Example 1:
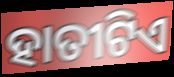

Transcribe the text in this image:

ହାତୀଟିଏ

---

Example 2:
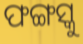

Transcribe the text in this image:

ଫଙ୍ଗସ୍କୁ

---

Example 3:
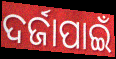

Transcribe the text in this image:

ଦର୍ଜାପାଇଁ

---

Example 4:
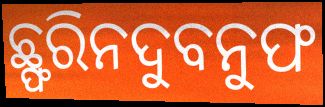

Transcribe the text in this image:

ଛ୍ଫରିନଦୁବନୁଫ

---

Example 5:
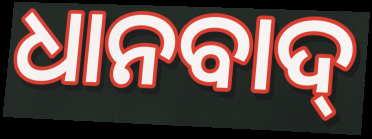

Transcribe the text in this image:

ଧାନବାଦ୍